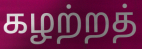
கழற்றத்